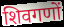
शिवगणों